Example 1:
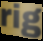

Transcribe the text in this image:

rig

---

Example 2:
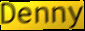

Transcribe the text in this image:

Denny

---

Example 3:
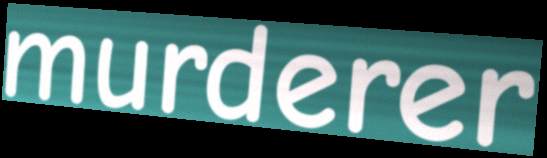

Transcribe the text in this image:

murderer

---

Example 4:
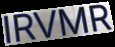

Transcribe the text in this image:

IRVMR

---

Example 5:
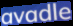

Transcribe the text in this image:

avadle